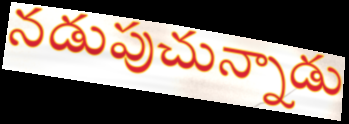
నడుపుచున్నాడు